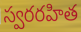
స్వరరహిత